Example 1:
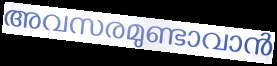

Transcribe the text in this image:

അവസരമുണ്ടാവാൻ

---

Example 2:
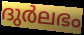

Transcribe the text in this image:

ദുർലഭം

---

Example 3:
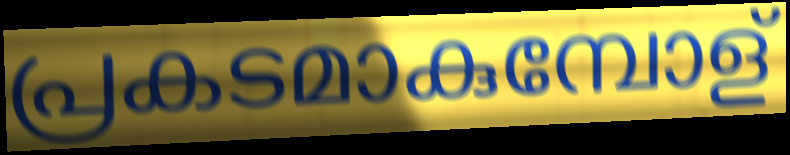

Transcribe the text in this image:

പ്രകടമാകുമ്പോള്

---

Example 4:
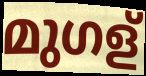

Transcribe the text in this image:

മുഗള്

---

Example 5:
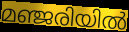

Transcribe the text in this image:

മഞ്ജരിയിൽ